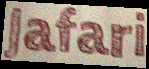
Jafari